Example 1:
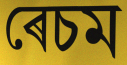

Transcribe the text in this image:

ৰেচম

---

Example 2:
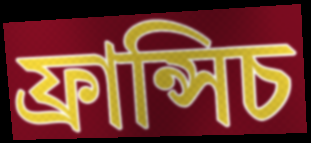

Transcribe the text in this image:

ফ্ৰান্সিচ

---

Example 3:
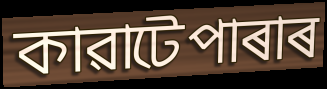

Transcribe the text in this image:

কাৱাটেপাৰাৰ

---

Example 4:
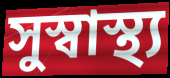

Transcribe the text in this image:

সুস্বাস্থ্য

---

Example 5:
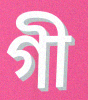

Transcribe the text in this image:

গী